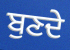
ਬੁਣਦੇ